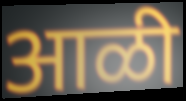
आळी